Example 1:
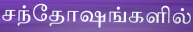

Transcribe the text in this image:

சந்தோஷங்களில்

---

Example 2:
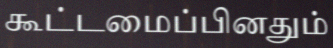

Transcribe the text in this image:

கூட்டமைப்பினதும்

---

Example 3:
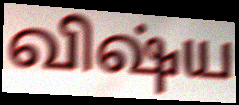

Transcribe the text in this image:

விஷ்ய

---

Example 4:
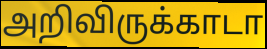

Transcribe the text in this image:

அறிவிருக்காடா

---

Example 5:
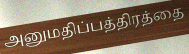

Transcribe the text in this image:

அனுமதிப்பத்திரத்தை